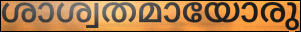
ശാശ്വതമായോരു